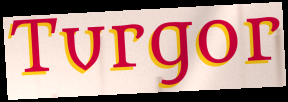
Turgor